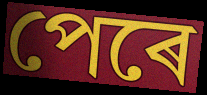
পেৰে